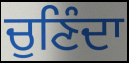
ਚੁਣਿੰਦਾ